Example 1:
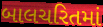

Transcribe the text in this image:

બાલચરિતમાં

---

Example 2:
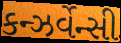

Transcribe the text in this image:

કન્ઝર્વેન્સી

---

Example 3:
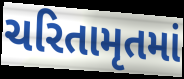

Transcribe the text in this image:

ચરિતામૃતમાં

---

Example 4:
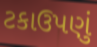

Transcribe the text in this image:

ટકાઉપણું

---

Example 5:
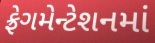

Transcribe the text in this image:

ફ્રેગમેન્ટેશનમાં